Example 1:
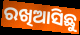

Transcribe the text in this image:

ରଖିଆସିଛୁ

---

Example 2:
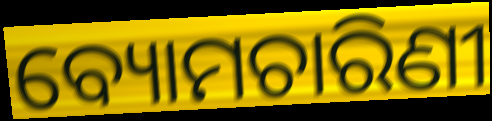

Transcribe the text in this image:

ବ୍ୟୋମଚାରିଣୀ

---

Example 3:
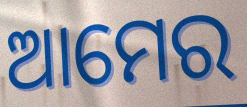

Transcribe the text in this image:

ଆମେର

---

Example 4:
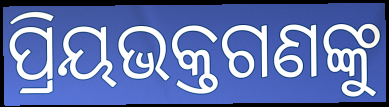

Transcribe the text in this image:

ପ୍ରିୟଭକ୍ତଗଣଙ୍କୁ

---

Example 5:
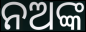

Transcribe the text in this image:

ନଅଙ୍କ